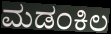
ಮಡಂಕಿಲ